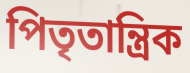
পিতৃতান্ত্রিক